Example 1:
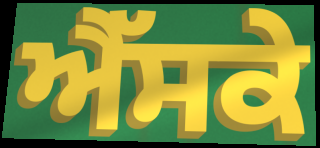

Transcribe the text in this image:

ਐੱਸਕੇ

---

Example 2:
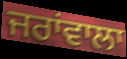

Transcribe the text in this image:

ਜਰਾਂਵਾਲਾ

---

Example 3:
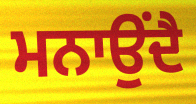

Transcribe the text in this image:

ਮਨਾਉਂਦੈ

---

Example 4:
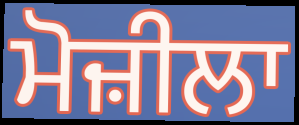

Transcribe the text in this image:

ਮੋਜ਼ੀਲਾ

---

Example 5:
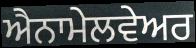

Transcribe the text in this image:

ਐਨਾਮੇਲਵੇਅਰ